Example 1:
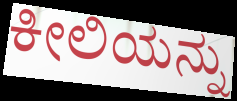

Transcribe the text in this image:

ಕೀಲಿಯನ್ನು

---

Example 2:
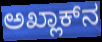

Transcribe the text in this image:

ಅಖ್ಲಾಕ್‍ನ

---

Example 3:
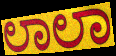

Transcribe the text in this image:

ಲಾಲಾ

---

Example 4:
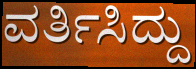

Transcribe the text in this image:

ವರ್ತಿಸಿದ್ದು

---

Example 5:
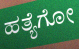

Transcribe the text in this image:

ಹತ್ಯೆಗೋ